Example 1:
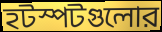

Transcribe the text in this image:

হটস্পটগুলোর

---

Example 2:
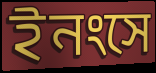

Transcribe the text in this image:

ইনংসে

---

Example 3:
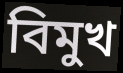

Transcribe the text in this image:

বিমুখ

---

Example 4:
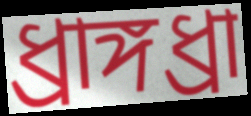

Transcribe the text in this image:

ধ্রাঙ্গধ্রা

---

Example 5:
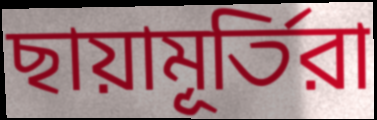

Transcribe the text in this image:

ছায়ামূর্তিরা